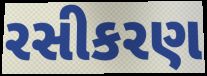
રસીકરણ